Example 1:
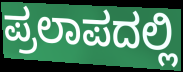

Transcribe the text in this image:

ಪ್ರಲಾಪದಲ್ಲಿ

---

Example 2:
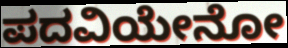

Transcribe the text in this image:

ಪದವಿಯೇನೋ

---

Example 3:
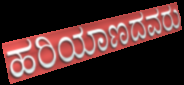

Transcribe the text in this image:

ಹರಿಯಾಣದವರು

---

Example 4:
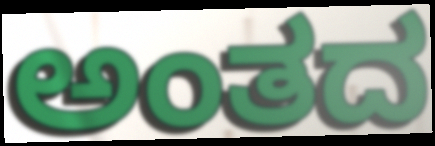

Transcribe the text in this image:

ಅಂತದ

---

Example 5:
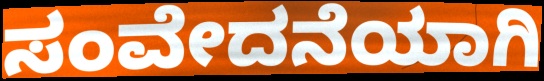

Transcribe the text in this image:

ಸಂವೇದನೆಯಾಗಿ